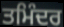
ਤਮਿੰਦਰ